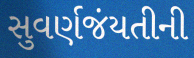
સુવર્ણજંયતીની